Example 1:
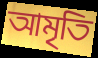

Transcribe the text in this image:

আমৃতি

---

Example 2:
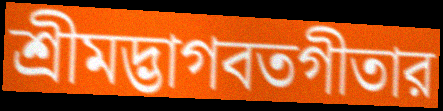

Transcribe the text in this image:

শ্রীমদ্ভাগবতগীতার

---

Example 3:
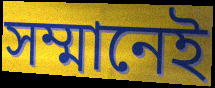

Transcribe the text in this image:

সম্মানেই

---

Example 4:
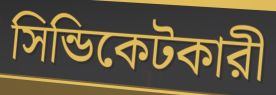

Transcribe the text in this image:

সিন্ডিকেটকারী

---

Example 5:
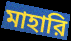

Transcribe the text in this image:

মাহারি